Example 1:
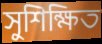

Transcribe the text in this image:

সুশিক্ষিত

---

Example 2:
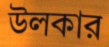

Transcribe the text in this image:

উলকার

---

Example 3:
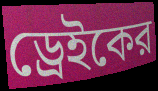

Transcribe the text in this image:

ড্রেইকের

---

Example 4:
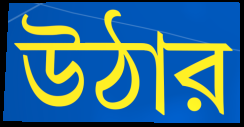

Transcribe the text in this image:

উঠার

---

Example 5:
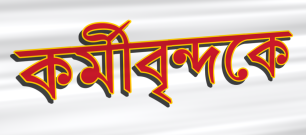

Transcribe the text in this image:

কর্মীবৃন্দকে